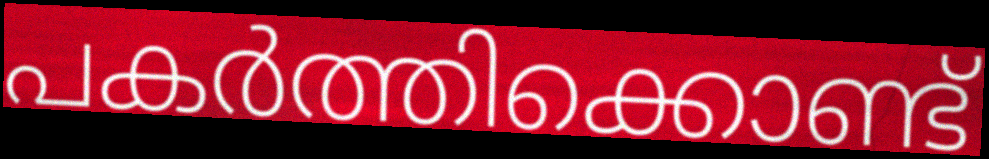
പകർത്തിക്കൊണ്ട്